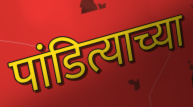
पांडित्याच्या